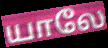
யாலே